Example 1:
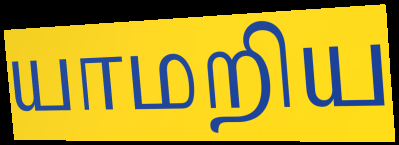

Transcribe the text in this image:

யாமறிய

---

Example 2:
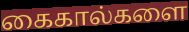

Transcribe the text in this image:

கைகால்களை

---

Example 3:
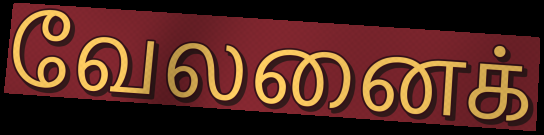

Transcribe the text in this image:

வேலனைக்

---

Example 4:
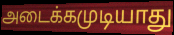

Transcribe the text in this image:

அடைக்கமுடியாது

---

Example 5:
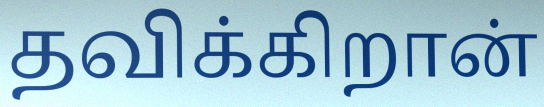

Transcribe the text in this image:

தவிக்கிறான்